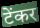
टेंकर